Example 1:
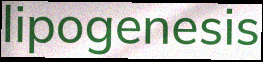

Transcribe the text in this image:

lipogenesis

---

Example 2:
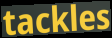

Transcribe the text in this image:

tackles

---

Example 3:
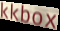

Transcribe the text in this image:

kkbox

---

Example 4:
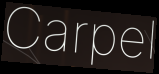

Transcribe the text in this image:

Carpel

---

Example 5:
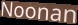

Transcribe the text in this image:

Noonan